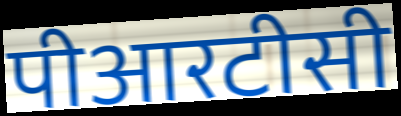
पीआरटीसी